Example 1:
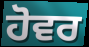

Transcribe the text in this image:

ਹੋਵਰ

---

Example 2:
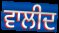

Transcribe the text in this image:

ਵਾਲੀਦ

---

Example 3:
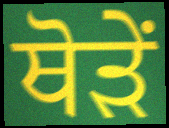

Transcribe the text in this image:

ਥੋੜੇਂ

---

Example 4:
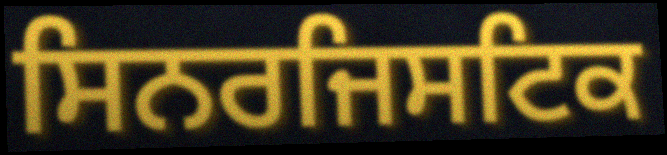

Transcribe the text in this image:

ਸਿਨਰਜਿਸਟਿਕ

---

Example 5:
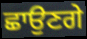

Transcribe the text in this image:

ਛਾਉਣਗੇ